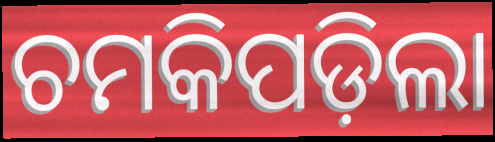
ଚମକିପଡ଼ିଲା